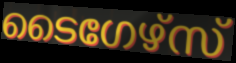
ടൈഗേഴ്സ്